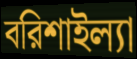
বরিশাইল্যা